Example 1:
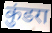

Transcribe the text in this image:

कुंडरा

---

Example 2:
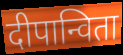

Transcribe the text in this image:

दीपान्विता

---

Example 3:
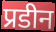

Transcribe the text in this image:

प्रडीन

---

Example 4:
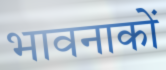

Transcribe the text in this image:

भावनाकों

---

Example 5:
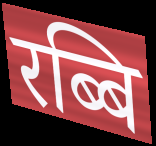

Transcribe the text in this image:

रब्बि